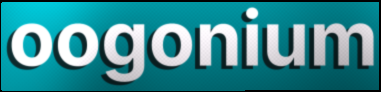
oogonium